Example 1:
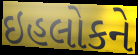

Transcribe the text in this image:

ઇહલોકને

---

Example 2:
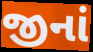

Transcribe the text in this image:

જીનાં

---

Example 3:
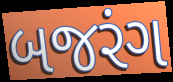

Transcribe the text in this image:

બજરંગ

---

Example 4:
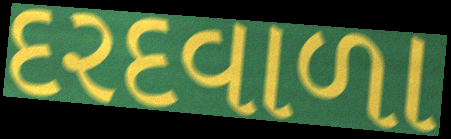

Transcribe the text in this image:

દરદવાળા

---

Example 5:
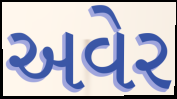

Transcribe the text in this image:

અવેર